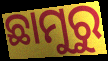
ଛାମୁରୁ